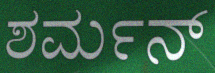
ಶರ್ಮನ್